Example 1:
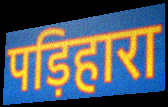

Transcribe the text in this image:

पड़िहारा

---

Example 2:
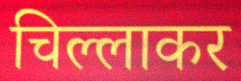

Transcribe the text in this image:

चिल्लाकर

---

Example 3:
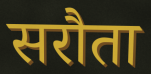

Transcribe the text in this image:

सरौता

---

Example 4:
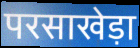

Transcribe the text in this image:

परसाखेड़ा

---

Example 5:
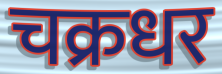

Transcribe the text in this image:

चक्रधर